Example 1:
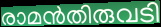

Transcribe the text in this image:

രാമൻതിരുവടി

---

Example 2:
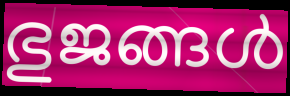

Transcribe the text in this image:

ഭുജങ്ങൾ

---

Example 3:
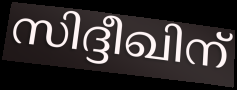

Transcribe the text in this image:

സിദ്ദീഖിന്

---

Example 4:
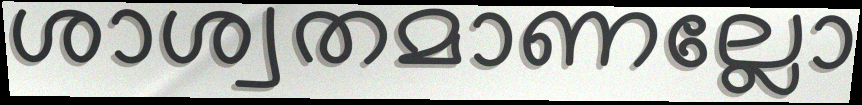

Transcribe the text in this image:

ശാശ്വതമാണല്ലോ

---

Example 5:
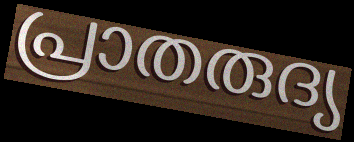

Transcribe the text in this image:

പ്രാതരുദ്യ